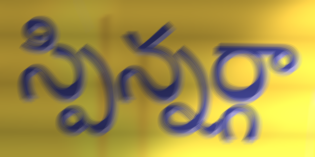
స్పిన్నర్గా